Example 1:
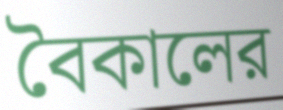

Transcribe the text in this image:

বৈকালের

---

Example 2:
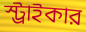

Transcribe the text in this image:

স্ট্রাইকার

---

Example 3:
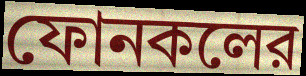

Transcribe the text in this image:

ফোনকলের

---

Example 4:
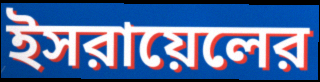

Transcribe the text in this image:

ইসরায়েলের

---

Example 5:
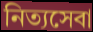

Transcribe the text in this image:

নিত্যসেবা